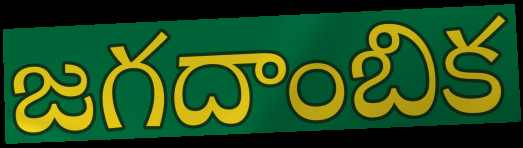
జగదాంబిక